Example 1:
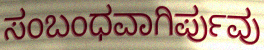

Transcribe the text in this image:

ಸಂಬಂಧವಾಗಿರ್ಪುವು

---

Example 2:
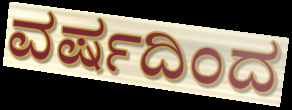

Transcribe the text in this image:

ವರ್ಷದಿಂದ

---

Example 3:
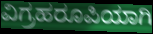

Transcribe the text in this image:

ವಿಗ್ರಹರೂಪಿಯಾಗಿ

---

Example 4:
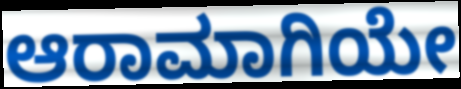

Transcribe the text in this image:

ಆರಾಮಾಗಿಯೇ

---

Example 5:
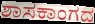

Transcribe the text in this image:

ಶಾಸಕಾಂಗದ